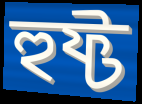
হুফ্ট